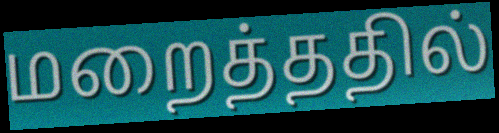
மறைத்ததில்